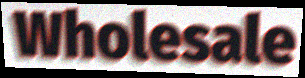
Wholesale